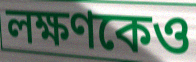
লক্ষণকেও